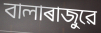
বালাৰাজুৱে